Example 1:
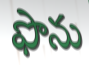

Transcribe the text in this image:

ఫొను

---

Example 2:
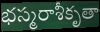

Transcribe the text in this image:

భస్మరాశీకృతా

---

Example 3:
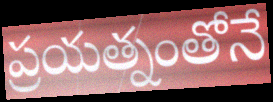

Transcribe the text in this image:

ప్రయత్నంతోనే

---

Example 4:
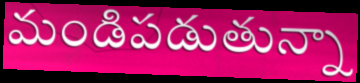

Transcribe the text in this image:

మండిపడుతున్నా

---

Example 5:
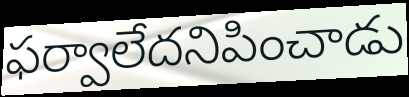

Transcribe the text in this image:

ఫర్వాలేదనిపించాడు